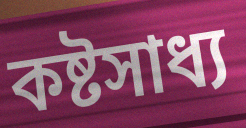
কষ্টসাধ্য